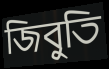
জিবুতি